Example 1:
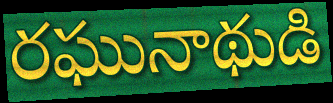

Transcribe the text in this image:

రఘునాథుడి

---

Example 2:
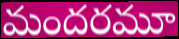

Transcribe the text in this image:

మందరమూ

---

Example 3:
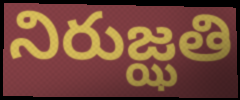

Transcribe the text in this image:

నిరుజ్ఝతి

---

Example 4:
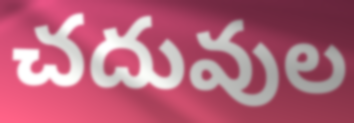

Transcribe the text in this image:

చదువుల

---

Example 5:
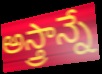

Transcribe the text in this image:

అస్త్రాన్నే